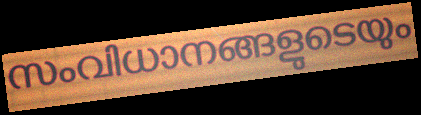
സംവിധാനങ്ങളുടെയും